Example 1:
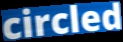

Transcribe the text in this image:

circled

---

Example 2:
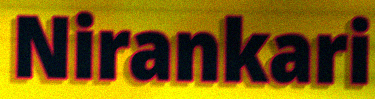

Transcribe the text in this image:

Nirankari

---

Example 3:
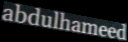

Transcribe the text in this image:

abdulhameed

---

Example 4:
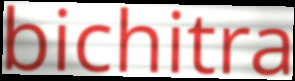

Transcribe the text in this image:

bichitra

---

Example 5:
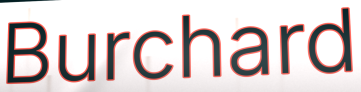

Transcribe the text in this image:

Burchard